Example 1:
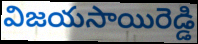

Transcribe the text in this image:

విజయసాయిరెడ్డి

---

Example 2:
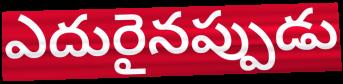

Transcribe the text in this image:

ఎదురైనప్పుడు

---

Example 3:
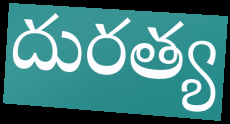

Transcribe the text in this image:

దురత్య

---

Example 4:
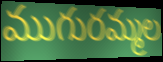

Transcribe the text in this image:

ముగురమ్మల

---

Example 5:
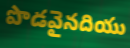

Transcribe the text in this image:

పొడవైనదియు